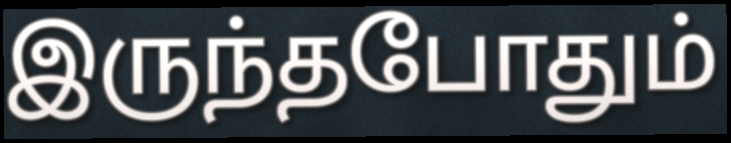
இருந்தபோதும்